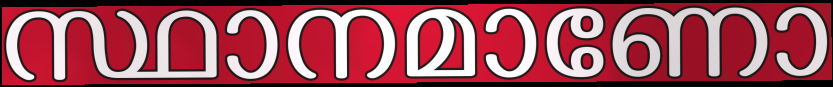
സ്ഥാനമാണോ